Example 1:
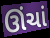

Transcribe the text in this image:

ઊંચાં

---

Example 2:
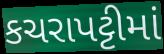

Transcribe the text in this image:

કચરાપટ્ટીમાં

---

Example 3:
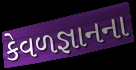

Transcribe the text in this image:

કેવળજ્ઞાનના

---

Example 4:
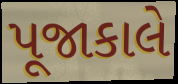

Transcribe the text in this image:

પૂજાકાલે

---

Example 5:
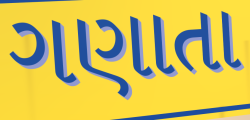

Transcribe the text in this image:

ગણાતા